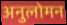
अनुलोमन